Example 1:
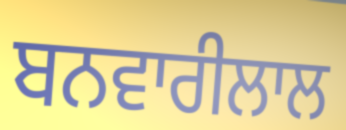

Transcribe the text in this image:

ਬਨਵਾਰੀਲਾਲ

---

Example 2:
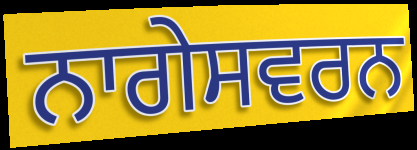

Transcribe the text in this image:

ਨਾਗੇਸਵਰਨ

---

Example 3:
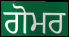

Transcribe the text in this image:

ਗੋਮਰ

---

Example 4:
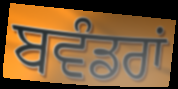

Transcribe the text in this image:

ਬਵੰਡਰਾਂ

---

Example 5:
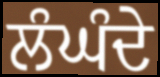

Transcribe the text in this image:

ਲੰਘੰਦੇ